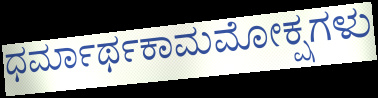
ಧರ್ಮಾರ್ಥಕಾಮಮೋಕ್ಷಗಳು